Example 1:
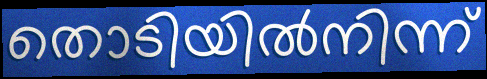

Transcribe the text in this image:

തൊടിയിൽനിന്ന്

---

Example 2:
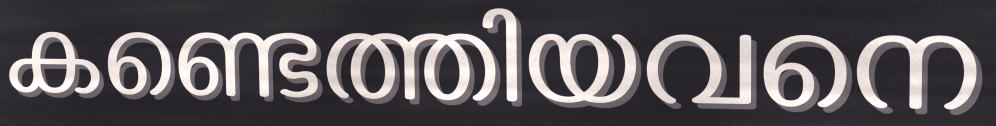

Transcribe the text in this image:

കണ്ടെത്തിയവനെ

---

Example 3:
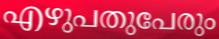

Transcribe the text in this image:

എഴുപതുപേരും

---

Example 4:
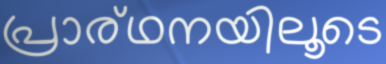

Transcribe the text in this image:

പ്രാര്ഥനയിലൂടെ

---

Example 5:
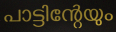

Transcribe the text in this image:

പാട്ടിന്റേയും